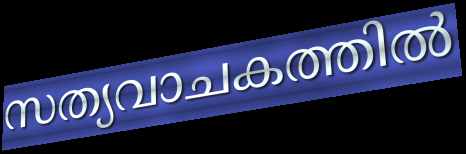
സത്യവാചകത്തിൽ